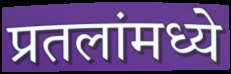
प्रतलांमध्ये